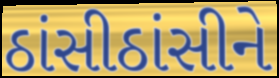
ઠાંસીઠાંસીને